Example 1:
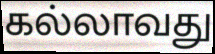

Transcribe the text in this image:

கல்லாவது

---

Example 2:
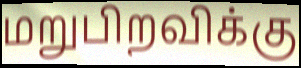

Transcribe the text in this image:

மறுபிறவிக்கு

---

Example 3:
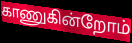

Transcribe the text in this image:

காணுகின்றோம்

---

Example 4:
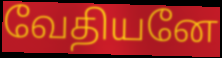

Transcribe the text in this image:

வேதியனே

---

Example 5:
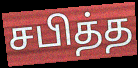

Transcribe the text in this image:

சபித்த